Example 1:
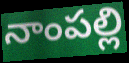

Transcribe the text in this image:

నాంపల్లి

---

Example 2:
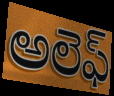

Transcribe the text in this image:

అలెఫ్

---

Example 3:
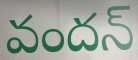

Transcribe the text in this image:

వందన్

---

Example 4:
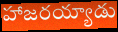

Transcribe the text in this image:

హాజరయ్యాడు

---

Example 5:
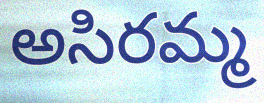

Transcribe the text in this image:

అసిరమ్మ